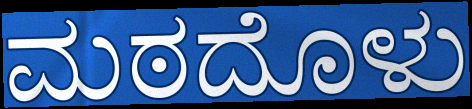
ಮಠದೊಳು